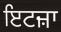
ਇਟਜ਼ਾ